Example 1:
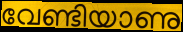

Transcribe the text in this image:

വേണ്ടിയാണു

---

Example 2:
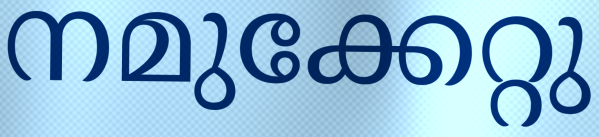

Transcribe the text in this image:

നമുക്കേറ്റു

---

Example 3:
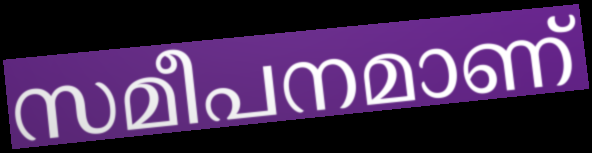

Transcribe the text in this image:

സമീപനമാണ്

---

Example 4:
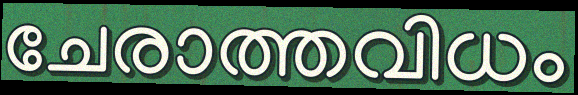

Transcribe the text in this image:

ചേരാത്തവിധം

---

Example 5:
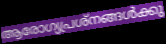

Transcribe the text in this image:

ആരോഗ്യപ്രശ്നങ്ങൾക്കു